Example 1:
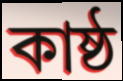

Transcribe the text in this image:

কাষ্ঠ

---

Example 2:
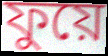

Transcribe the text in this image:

ফুয়ে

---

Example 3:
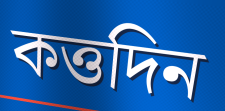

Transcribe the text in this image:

কত্তদিন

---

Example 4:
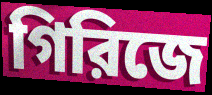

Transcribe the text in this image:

গিরিজে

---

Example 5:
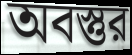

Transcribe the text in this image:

অবস্তুর